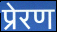
प्रेरण